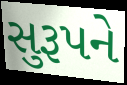
સુરૂપને